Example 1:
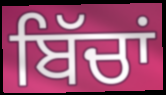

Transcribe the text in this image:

ਬਿੱਚਾਂ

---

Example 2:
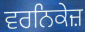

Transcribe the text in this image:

ਵਰਨਿਕੇਜ਼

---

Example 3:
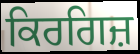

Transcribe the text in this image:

ਕਿਰਗਿਜ਼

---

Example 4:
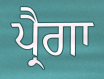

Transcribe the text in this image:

ਪ੍ਰੈਗਾ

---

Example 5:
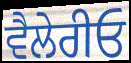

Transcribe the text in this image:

ਵੈਲੇਰੀਓ